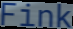
Fink